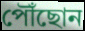
পৌঁছোন